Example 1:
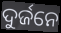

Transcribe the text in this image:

ଦୁର୍ଜନେ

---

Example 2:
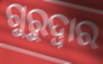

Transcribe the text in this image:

ଗୁରୁଦ୍ଵାର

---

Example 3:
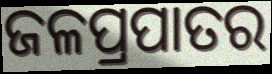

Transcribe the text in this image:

ଜଳପ୍ରପାତର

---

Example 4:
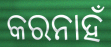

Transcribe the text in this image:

କରନାହଁ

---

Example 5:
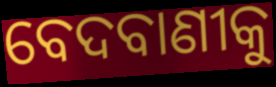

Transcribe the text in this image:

ବେଦବାଣୀକୁ